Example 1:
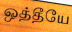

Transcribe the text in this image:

ஒத்தீயே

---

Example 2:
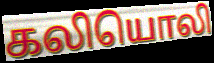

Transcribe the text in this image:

கலியொலி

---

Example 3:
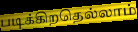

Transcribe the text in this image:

படிக்கிறதெல்லாம்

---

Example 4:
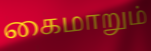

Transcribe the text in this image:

கைமாறும்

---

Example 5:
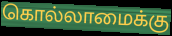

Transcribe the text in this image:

கொல்லாமைக்கு